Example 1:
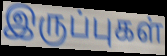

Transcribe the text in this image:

இருப்புகள்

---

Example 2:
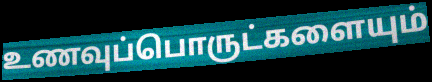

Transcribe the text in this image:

உணவுப்பொருட்களையும்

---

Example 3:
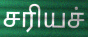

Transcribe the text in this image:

சரியச்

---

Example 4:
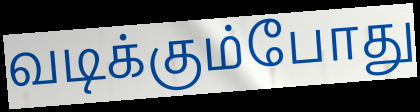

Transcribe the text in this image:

வடிக்கும்போது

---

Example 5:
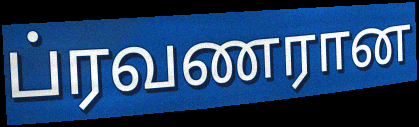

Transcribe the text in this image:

ப்ரவணரான